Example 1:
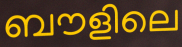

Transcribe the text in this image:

ബൗളിലെ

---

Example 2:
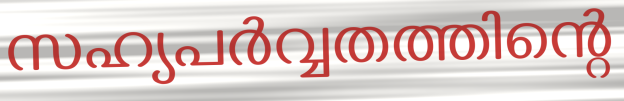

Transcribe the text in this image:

സഹ്യപർവ്വതത്തിന്റെ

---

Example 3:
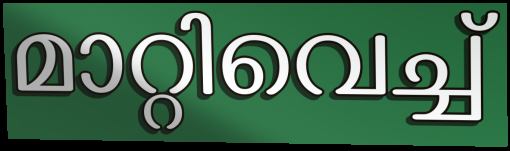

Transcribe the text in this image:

മാറ്റിവെച്ച്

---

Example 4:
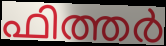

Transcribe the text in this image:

ഫിത്തർ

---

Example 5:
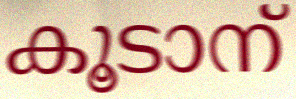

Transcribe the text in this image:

കൂടാന്